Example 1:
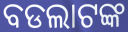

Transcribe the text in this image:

ବଡଲାଟଙ୍କ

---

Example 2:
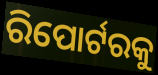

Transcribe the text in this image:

ରିପୋର୍ଟରକୁ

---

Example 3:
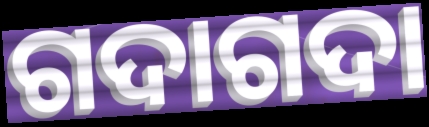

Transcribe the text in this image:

ଗଦାଗଦା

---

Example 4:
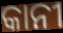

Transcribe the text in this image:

କାନୀ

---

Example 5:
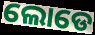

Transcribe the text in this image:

ଲୋଡେ